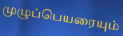
முழுப்பெயரையும்